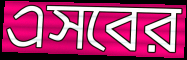
এসবের